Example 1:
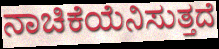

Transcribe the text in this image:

ನಾಚಿಕೆಯೆನಿಸುತ್ತದೆ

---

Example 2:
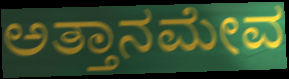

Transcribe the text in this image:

ಅತ್ತಾನಮೇವ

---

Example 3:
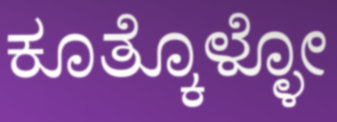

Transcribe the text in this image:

ಕೂತ್ಕೊಳ್ಳೋ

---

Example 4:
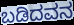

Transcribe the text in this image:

ಬಡಿದವನ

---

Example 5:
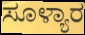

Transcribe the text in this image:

ಸೂಳ್ಯಾರ